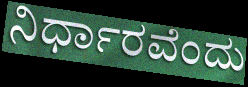
ನಿರ್ಧಾರವೆಂದು